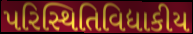
પરિસ્થિતિવિદ્યાકીય